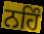
ਨਹਿੰ